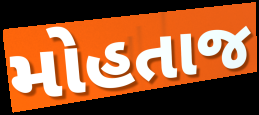
મોહતાજ